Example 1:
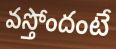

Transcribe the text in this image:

వస్తోందంటే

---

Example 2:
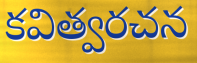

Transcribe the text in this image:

కవిత్వరచన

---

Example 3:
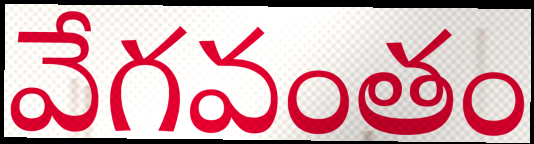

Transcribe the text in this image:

వేగవంతం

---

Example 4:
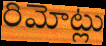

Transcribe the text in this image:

రిమోట్లు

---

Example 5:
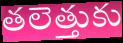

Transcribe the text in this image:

తలెత్తుకు